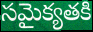
సమైక్యతకి